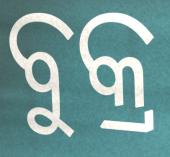
ବୁକ୍ର